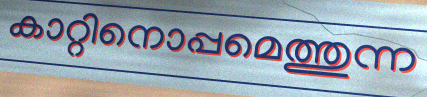
കാറ്റിനൊപ്പമെത്തുന്ന